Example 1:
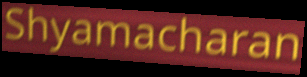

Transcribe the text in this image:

Shyamacharan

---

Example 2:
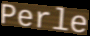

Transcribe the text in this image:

Perle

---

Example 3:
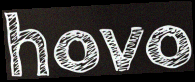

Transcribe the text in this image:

hovo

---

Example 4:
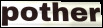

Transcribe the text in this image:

pother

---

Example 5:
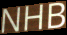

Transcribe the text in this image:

NHB